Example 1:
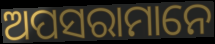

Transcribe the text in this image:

ଅପସରାମାନେ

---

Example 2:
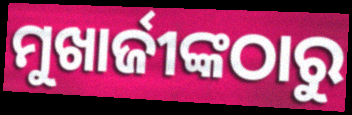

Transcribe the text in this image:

ମୁଖାର୍ଜୀଙ୍କଠାରୁ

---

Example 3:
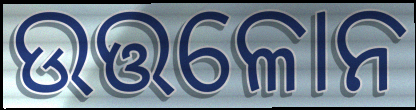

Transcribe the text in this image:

ଉତ୍ତଳୋନ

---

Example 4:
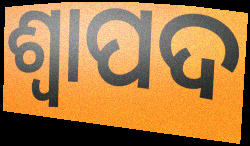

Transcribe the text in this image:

ଶ୍ୱାପଦ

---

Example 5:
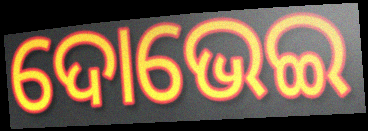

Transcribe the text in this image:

ଦୋଭେଇ